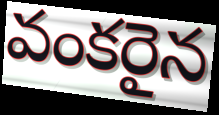
వంకరైన